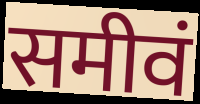
समीवं